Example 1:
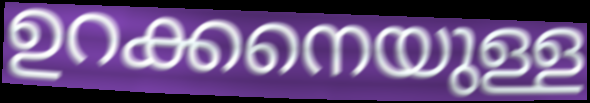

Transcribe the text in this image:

ഉറക്കനെയുള്ള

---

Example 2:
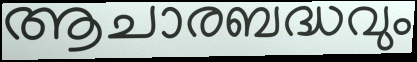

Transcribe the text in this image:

ആചാരബദ്ധവും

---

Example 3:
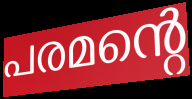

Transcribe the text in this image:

പരമന്റെ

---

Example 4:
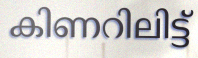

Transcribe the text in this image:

കിണറിലിട്ട്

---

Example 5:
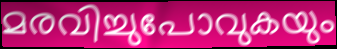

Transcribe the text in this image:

മരവിച്ചുപോവുകയും